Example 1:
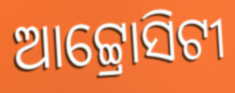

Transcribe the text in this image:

ଆଟ୍ଟ୍ରୋସିଟୀ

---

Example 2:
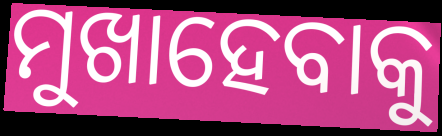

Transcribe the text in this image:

ମୁଖାହେବାକୁ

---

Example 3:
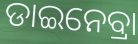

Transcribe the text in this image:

ଡାଇନେବ୍ରା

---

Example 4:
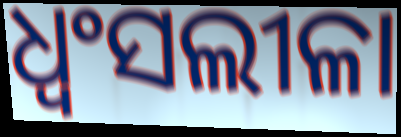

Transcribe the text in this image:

ଧ୍ବଂସଲୀଳା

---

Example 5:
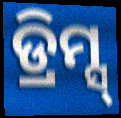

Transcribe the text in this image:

ଡ୍ରିମ୍ସ୍